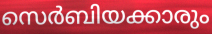
സെർബിയക്കാരും